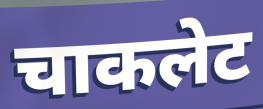
चाकलेट